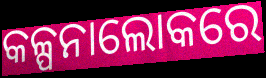
କଳ୍ପନାଲୋକରେ